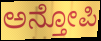
ಅನ್ತೋಪಿ